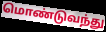
மொண்டுவந்து